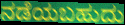
ನಡೆಯಬಹುದು